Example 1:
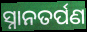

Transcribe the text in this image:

ସ୍ନାନତର୍ପଣ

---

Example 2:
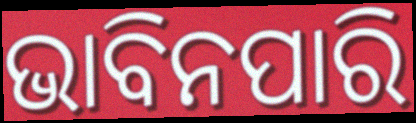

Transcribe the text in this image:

ଭାବିନପାରି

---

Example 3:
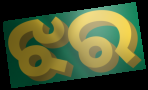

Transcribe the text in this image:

ଝର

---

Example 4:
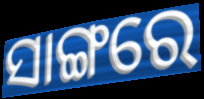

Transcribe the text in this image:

ସାଙ୍ଗରେ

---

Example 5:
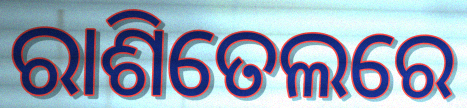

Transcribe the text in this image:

ରାଶିତେଲରେ